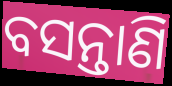
ବସନ୍ତାଣି